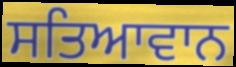
ਸਤਿਆਵਾਨ